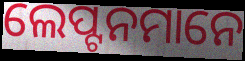
ଲେପ୍ଟନମାନେ